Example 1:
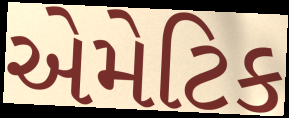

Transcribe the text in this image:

એમેટિક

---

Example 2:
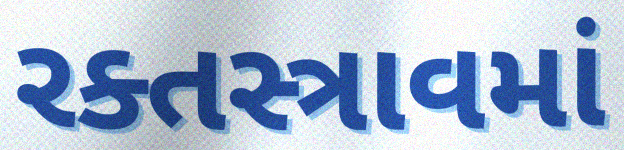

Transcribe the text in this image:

રક્તસ્ત્રાવમાં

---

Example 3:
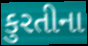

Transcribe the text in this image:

કુરતીના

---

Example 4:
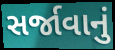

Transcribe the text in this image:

સર્જાવાનું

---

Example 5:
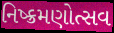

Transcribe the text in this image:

નિષ્ક્રમણોત્સવ